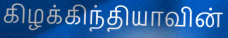
கிழக்கிந்தியாவின்